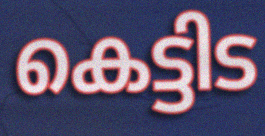
കെട്ടിട